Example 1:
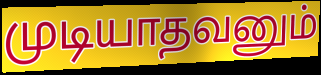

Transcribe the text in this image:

முடியாதவனும்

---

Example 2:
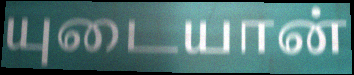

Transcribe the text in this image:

யுடையான்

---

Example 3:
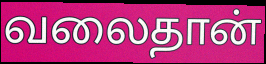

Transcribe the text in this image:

வலைதான்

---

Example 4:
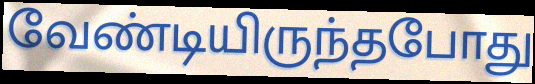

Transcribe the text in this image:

வேண்டியிருந்தபோது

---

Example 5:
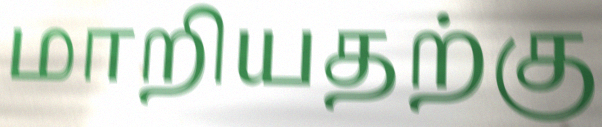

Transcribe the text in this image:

மாறியதற்கு